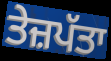
ਤੇਜ਼ਪੱਤਾ